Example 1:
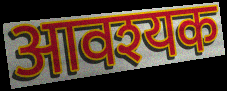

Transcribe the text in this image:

आवश्‍यक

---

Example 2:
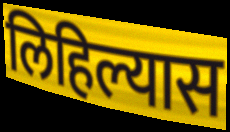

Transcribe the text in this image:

लिहिल्यास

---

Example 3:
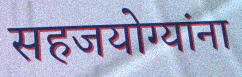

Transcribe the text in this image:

सहजयोग्यांना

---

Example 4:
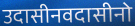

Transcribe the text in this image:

उदासीनवदासीनो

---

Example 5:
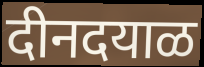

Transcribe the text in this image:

दीनदयाळ